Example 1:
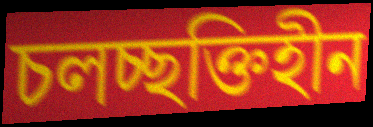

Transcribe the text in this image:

চলচ্ছক্তিহীন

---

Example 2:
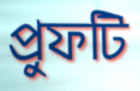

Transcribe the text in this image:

প্রুফটি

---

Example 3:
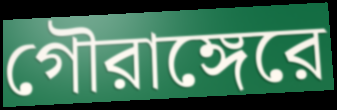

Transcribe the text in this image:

গৌরাঙ্গেরে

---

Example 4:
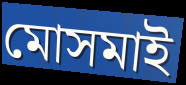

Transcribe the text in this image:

মোসমাই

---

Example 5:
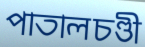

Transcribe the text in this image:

পাতালচণ্ডী